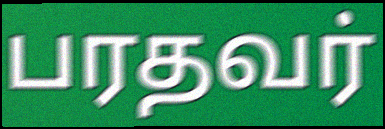
பரதவர்